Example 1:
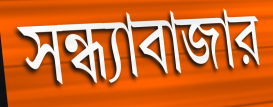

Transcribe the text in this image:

সন্ধ্যাবাজার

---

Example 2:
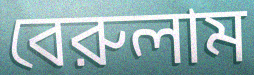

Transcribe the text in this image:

বেরুলাম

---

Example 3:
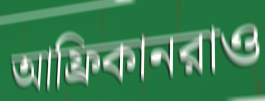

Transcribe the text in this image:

আফ্রিকানরাও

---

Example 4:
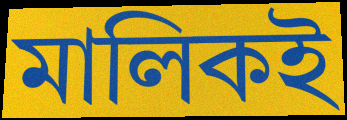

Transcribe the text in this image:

মালিকই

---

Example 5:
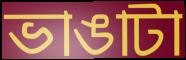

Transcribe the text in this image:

ভাঙাটা